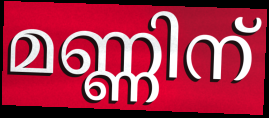
മണ്ണിന്